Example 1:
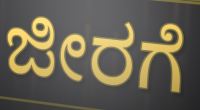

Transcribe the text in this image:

ಜೀರಗೆ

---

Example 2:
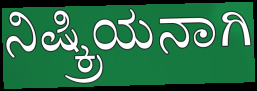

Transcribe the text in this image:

ನಿಷ್ಕ್ರಿಯನಾಗಿ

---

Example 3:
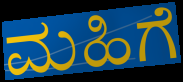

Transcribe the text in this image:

ಮಹಿಗೆ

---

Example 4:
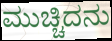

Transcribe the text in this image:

ಮುಚ್ಚಿದನು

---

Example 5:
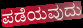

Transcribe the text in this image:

ಪಡೆಯವುದು